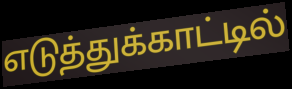
எடுத்துக்காட்டில்